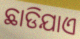
ଛାଡିଯାଏ